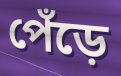
পেঁড়ে